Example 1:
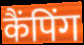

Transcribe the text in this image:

कैंपिंग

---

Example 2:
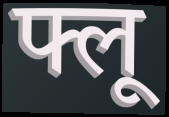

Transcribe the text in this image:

फ्लू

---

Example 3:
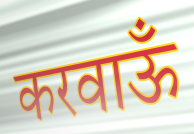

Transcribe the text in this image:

करवाऊँ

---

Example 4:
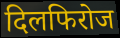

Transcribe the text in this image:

दिलफिरोज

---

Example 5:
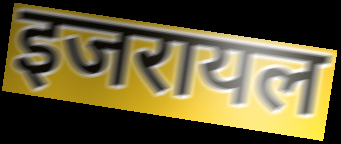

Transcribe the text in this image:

इजरायल